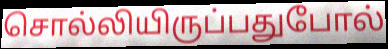
சொல்லியிருப்பதுபோல்